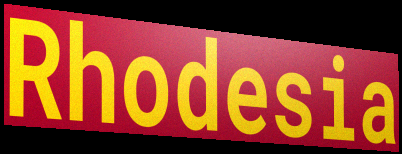
Rhodesia